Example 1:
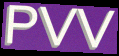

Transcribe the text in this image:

PVV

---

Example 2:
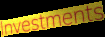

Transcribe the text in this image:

Investments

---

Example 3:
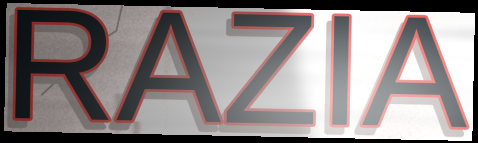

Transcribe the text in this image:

RAZIA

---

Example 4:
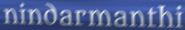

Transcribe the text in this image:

nindarmanthi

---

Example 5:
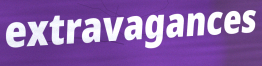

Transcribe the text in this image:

extravagances